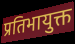
प्रतिभायुक्त